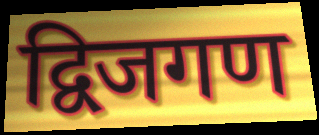
द्विजगण